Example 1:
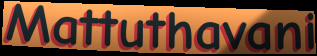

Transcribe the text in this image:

Mattuthavani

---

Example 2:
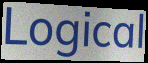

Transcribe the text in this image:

Logical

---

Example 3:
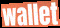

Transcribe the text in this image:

wallet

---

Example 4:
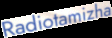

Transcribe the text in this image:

Radiotamizha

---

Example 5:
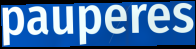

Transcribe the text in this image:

pauperes